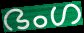
ഭംഗ